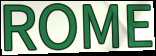
ROME